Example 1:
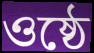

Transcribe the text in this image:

ওষ্ঠে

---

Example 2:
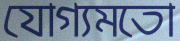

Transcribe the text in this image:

যোগ্যমতো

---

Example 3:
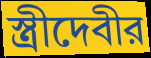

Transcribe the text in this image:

স্ত্রীদেবীর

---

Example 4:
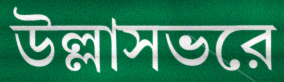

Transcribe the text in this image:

উল্লাসভরে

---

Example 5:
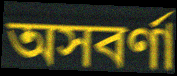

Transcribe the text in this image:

অসবর্ণা